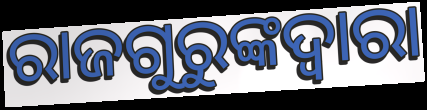
ରାଜଗୁରୁଙ୍କଦ୍ୱାରା